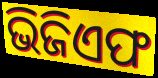
ଭିଜିଏଫ